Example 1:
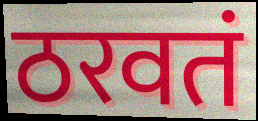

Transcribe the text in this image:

ठरवतं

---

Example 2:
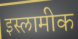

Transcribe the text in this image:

इस्लामीक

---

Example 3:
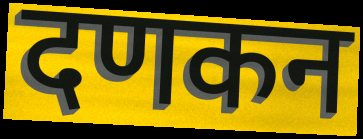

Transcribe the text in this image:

दणकन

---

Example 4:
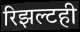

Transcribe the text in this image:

रिझल्टही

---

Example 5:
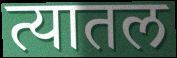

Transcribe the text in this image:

त्यातल